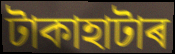
টাকাহাটাৰ